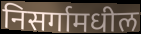
निसर्गामधील